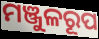
ମଞ୍ଜୁଳରୂପ